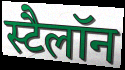
स्टैलॉन